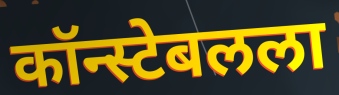
कॉन्स्टेबलला